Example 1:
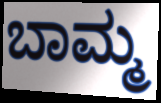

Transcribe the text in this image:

ಬಾಮ್ಮ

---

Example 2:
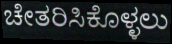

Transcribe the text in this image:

ಚೇತರಿಸಿಕೊಳ್ಳಲು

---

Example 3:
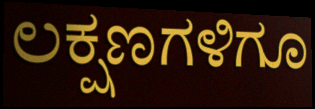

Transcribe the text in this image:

ಲಕ್ಷಣಗಳಿಗೂ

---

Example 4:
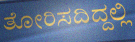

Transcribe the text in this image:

ತೋರಿಸದಿದ್ದಲ್ಲಿ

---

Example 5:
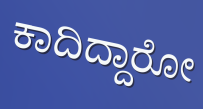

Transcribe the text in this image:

ಕಾದಿದ್ದಾರೋ